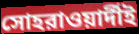
সোহরাওয়ার্দীই